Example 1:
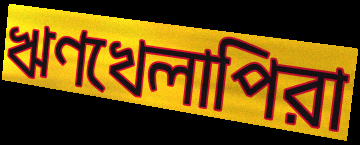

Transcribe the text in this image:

ঋণখেলাপিরা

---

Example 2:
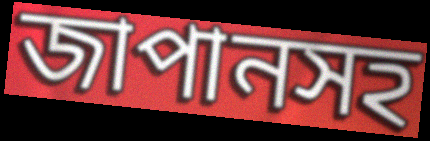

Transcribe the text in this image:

জাপানসহ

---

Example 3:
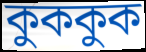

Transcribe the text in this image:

কুককুক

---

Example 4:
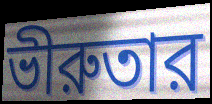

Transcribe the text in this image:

ভীরুতার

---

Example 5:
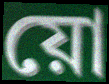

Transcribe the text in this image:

য়ো